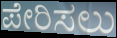
ಪೇರಿಸಲು